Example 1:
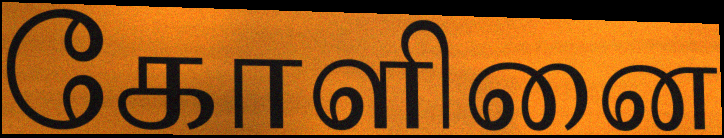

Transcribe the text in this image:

கோளினை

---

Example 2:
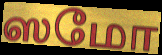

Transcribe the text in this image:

ஸமோ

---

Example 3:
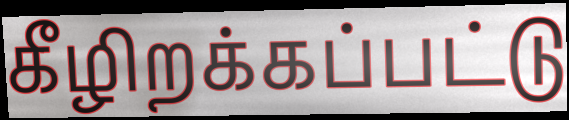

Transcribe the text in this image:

கீழிறக்கப்பட்டு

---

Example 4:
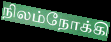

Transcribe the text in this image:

நிலம்நோக்கி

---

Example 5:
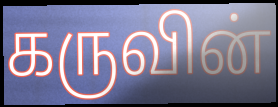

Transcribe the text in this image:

கருவின்